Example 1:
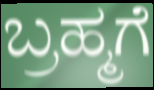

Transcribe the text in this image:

ಬ್ರಹ್ಮಗೆ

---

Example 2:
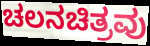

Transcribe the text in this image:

ಚಲನಚಿತ್ರವು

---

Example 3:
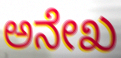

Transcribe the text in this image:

ಅನೇಖ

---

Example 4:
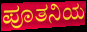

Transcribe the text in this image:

ಪೂತನಿಯ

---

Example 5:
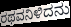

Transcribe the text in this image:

ರಥವನಿಳಿದನು